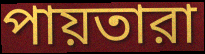
পায়তারা